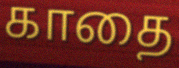
காதை